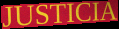
JUSTICIA